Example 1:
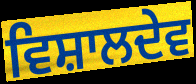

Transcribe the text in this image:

ਵਿਸ਼ਾਲਦੇਵ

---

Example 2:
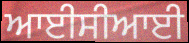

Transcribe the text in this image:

ਆਈਸੀਆਈ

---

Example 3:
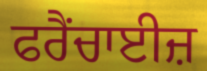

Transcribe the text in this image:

ਫਰੈਂਚਾਈਜ਼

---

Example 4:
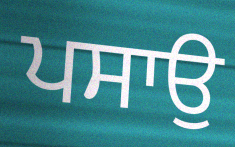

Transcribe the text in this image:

ਪਸਾਉ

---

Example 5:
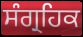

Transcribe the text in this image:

ਸੰਗ੍ਰਹਿਕ